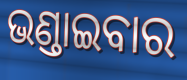
ଭଣ୍ଡାଇବାର